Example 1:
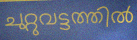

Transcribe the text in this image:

ചുറ്റുവട്ടത്തിൽ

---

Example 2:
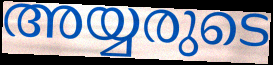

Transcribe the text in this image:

അയ്യരുടെ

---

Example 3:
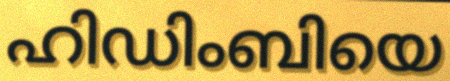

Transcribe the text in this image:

ഹിഡിംബിയെ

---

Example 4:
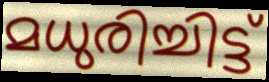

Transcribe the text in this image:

മധുരിച്ചിട്ട്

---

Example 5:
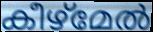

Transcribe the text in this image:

കീഴ്മേൽ